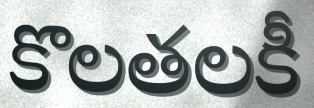
కొలతలకీ